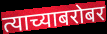
त्याच्याबरोबर